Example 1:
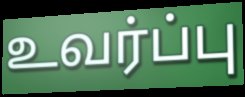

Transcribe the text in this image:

உவர்ப்பு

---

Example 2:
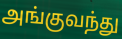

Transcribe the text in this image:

அங்குவந்து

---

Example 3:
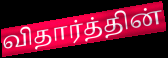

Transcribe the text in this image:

விதார்த்தின்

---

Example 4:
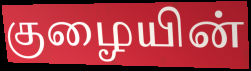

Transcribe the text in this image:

குழையின்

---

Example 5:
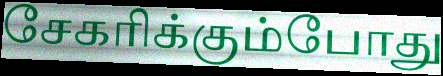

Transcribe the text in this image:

சேகரிக்கும்போது